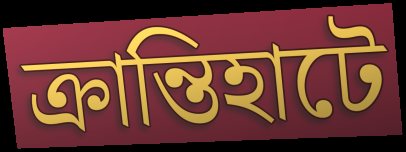
ক্রান্তিহাটে